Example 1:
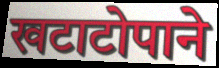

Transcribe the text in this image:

खटाटोपाने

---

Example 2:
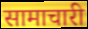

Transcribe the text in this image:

सामाचारी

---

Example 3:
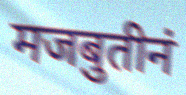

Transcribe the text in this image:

मजबुतीनं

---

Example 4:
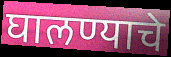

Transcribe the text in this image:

घालण्याचे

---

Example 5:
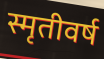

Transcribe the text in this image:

स्मृतीवर्ष